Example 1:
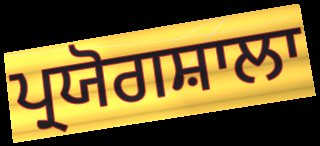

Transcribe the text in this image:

ਪ੍ਰਯੋਗਸ਼ਾਲਾ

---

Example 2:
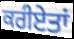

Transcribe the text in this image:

ਕਰੀਏਤਾਂ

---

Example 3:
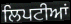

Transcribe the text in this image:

ਲਿਪਟੀਆਂ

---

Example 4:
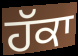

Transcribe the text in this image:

ਹੱਕਾ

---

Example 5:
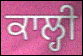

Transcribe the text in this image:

ਕਾਲ੍ਹ੍ਹੀ